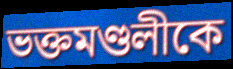
ভক্তমণ্ডলীকে